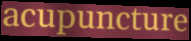
acupuncture